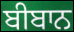
ਬੀਬਾਨ